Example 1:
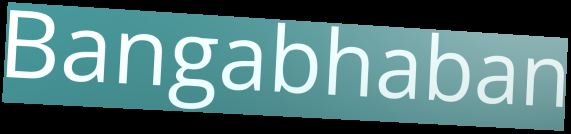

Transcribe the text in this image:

Bangabhaban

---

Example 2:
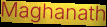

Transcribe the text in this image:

Maghanath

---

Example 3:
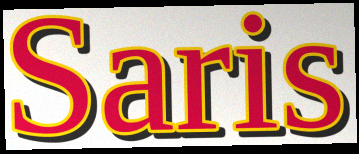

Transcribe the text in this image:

Saris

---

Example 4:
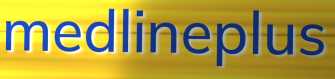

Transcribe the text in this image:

medlineplus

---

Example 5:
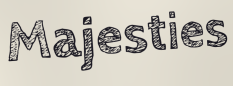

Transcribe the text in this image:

Majesties